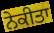
ਨੇਕੀਤਾ